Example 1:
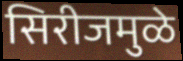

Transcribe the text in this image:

सिरीजमुळे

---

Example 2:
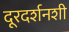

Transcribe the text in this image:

दूरदर्शनशी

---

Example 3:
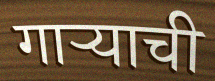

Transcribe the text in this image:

गाऱ्याची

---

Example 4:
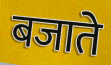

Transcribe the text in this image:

बजाते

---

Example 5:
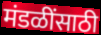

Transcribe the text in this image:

मंडळींसाठी